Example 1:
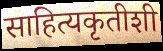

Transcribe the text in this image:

साहित्यकृतीशी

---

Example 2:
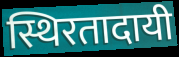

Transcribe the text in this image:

स्थिरतादायी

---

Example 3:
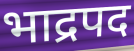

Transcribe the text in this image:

भाद्रपद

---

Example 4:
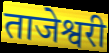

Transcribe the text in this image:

ताजेश्वरी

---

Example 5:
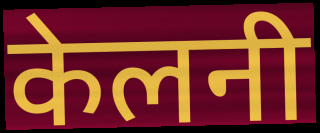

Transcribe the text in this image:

केलनी